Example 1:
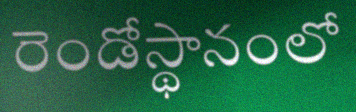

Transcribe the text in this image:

రెండోస్థానంలో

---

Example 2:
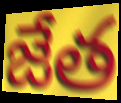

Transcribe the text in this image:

జేత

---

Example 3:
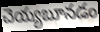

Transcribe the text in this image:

చెయ్యబూనడం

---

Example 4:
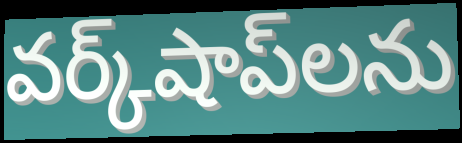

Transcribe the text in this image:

వర్క్‌షాప్‌లను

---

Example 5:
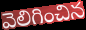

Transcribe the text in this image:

వెలిగించిన